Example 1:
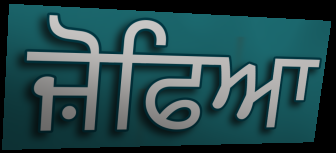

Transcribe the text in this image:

ਜ਼ੋਫਿਆ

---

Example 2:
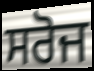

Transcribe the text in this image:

ਸਰੋਜ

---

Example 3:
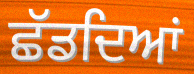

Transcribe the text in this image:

ਛੱਡਦਿਆਂ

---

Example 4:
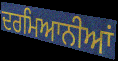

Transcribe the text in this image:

ਦਰਮਿਆਨੀਆਂ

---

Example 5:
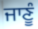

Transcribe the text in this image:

ਜਾਣੂੰ